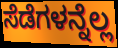
ಸೆಡೆಗಳನ್ನೆಲ್ಲ